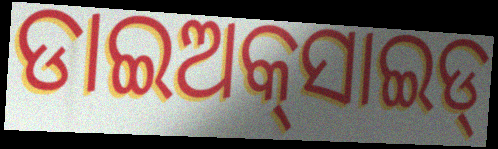
ଡାଇଅକ୍‌ସାଇଡ୍